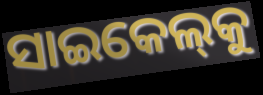
ସାଇକେଲ୍‌କୁ